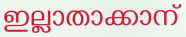
ഇല്ലാതാക്കാന്